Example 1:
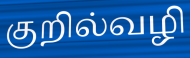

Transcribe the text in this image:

குறில்வழி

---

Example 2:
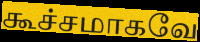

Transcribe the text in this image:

கூச்சமாகவே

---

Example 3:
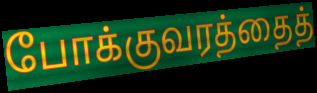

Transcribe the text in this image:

போக்குவரத்தைத்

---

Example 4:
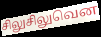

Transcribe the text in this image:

சிலுசிலுவென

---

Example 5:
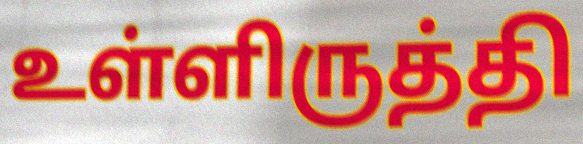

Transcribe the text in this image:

உள்ளிருத்தி